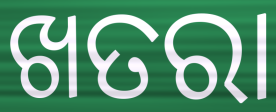
ଖତରା